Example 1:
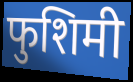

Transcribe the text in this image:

फुशिमी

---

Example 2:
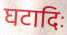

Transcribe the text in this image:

घटादिः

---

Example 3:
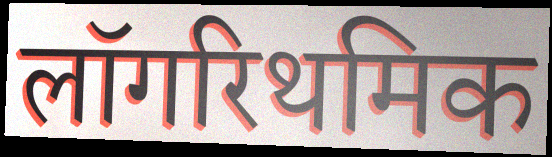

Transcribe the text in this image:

लॉगरिथमिक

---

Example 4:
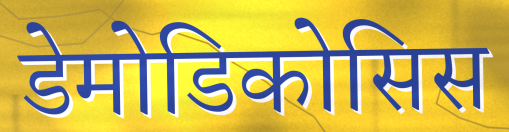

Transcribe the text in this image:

डेमोडिकोसिस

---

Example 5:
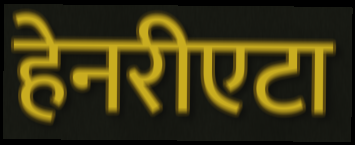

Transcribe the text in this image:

हेनरीएटा